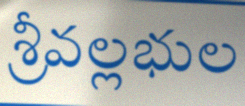
శ్రీవల్లభుల